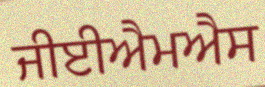
ਜੀਈਐਮਐਸ